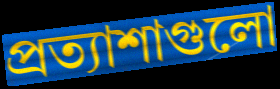
প্রত্যাশাগুলো